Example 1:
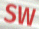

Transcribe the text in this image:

SW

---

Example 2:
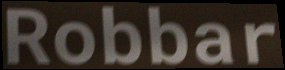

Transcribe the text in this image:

Robbar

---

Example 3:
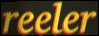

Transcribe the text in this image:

reeler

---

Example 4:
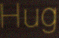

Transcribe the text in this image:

Hug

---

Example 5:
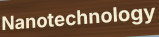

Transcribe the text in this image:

Nanotechnology